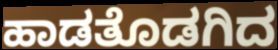
ಹಾಡತೊಡಗಿದ